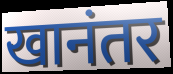
खानंतर